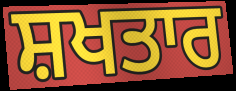
ਸ਼ਖਤਾਰ